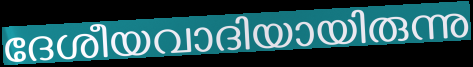
ദേശീയവാദിയായിരുന്നു